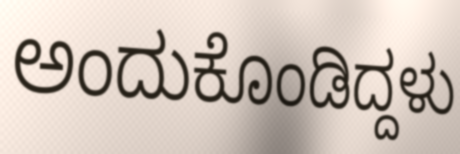
ಅಂದುಕೊಂಡಿದ್ದಳು